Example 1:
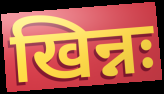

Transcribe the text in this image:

खिन्नः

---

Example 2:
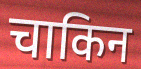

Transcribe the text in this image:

चाकिन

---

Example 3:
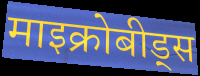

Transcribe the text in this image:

माइक्रोबीड्स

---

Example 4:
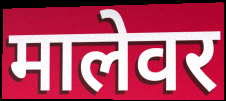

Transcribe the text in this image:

मालेवर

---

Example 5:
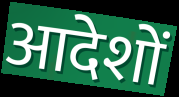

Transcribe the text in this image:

आदेशों